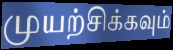
முயற்சிக்கவும்